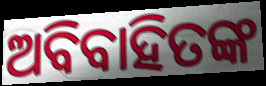
ଅବିବାହିତଙ୍କ